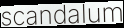
scandalum